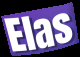
Elas